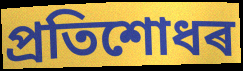
প্ৰতিশোধৰ